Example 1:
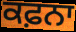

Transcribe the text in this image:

ਕਫ਼ਨਾ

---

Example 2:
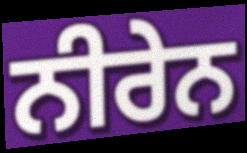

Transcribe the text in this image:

ਨੀਰੇਨ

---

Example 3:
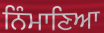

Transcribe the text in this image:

ਨਿੰਮਾਣਿਆ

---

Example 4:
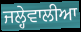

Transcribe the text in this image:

ਜਲ੍ਹੇਵਾਲੀਆ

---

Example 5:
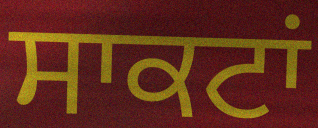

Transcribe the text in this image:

ਸਾਕਟਾਂ